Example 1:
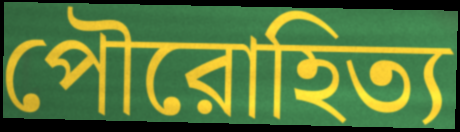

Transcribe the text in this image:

পৌরোহিত্য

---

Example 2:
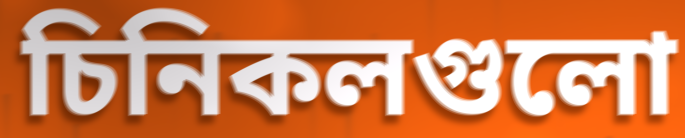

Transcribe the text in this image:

চিনিকলগুলো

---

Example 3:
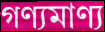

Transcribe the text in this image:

গণ্যমাণ্য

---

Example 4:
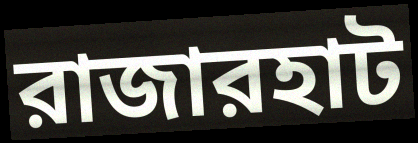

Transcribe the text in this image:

রাজারহাট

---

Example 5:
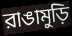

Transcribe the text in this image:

রাঙামুড়ি